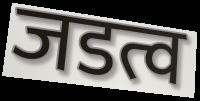
जडत्व